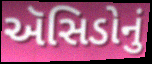
ઍસિડોનું